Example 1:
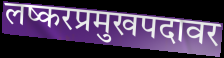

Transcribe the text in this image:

लष्करप्रमुखपदावर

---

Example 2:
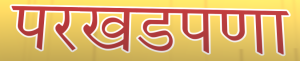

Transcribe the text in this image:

परखडपणा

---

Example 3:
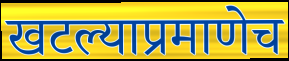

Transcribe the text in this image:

खटल्याप्रमाणेच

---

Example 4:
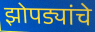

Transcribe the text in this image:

झोपड्यांचे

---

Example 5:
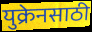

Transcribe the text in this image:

युक्रेनसाठी